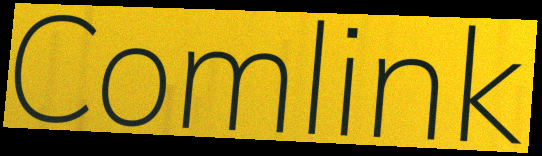
Comlink